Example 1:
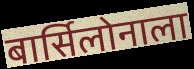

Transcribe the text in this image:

बार्सिलोनाला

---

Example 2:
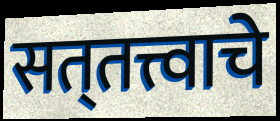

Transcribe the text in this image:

सत्‌तत्त्वाचे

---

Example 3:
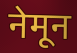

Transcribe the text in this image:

नेमून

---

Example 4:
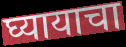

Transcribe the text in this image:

घ्यायाचा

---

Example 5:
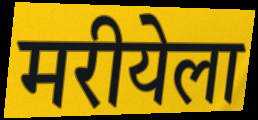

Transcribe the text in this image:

मरीयेला